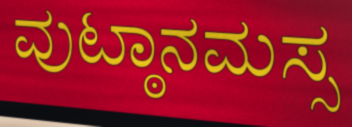
ವುಟ್ಠಾನಮಸ್ಸ